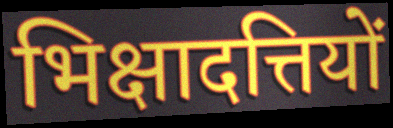
भिक्षादत्तियों